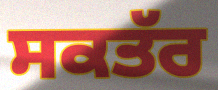
ਸਕਤੱਰ